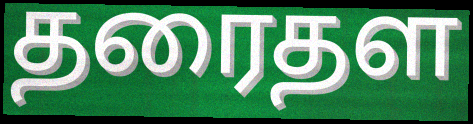
தரைதள